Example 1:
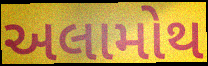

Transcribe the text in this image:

અલામોથ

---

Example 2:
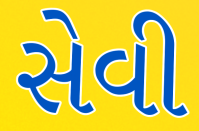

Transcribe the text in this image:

સેવી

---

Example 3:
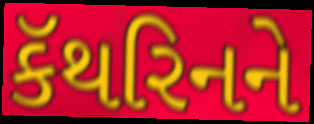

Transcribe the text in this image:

કૅથરિનને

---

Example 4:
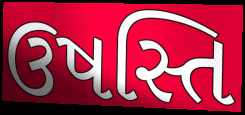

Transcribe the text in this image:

ઉષસ્તિ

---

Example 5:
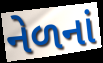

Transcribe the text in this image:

નેળનાં